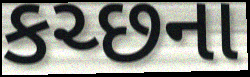
કચ્છના